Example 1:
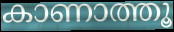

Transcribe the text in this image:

കാണാത്തൂ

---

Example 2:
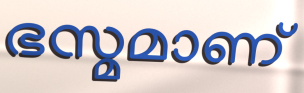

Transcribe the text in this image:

ഭസ്മമാണ്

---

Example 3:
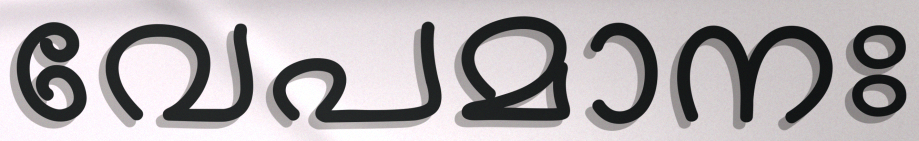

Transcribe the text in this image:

വേപമാനഃ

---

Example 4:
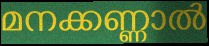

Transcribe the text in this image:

മനക്കണ്ണാൽ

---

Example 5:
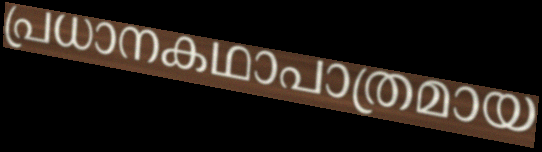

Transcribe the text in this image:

പ്രധാനകഥാപാത്രമായ